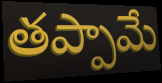
తప్పామే